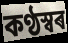
কণ্ঠস্বৰ